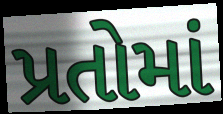
પ્રતોમાં